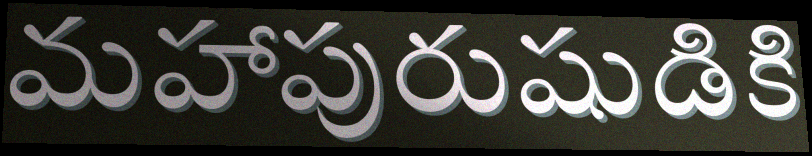
మహాపురుషుడికి